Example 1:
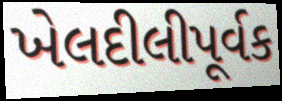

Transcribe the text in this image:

ખેલદીલીપૂર્વક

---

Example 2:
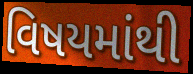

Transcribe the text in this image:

વિષયમાંથી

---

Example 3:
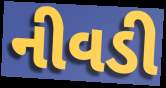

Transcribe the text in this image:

નીવડી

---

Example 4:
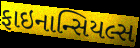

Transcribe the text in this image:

ફાઇનાન્સિયલ્સ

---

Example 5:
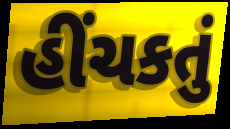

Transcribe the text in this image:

હીંચકતું